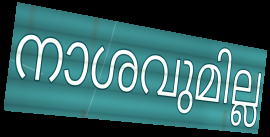
നാശവുമില്ല